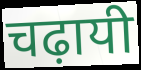
चढ़ायी